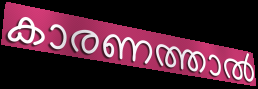
കാരണത്താൽ